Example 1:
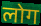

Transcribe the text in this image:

लोग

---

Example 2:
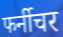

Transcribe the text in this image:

फर्नीचर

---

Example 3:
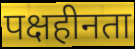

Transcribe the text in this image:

पक्षहीनता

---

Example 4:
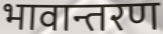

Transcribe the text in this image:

भावान्तरण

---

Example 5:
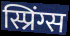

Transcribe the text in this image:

स्प्रिंग्स